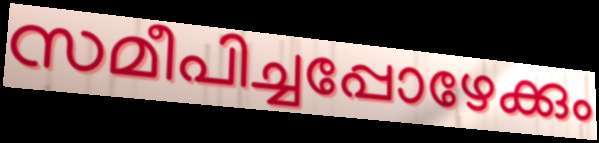
സമീപിച്ചപ്പോഴേക്കും